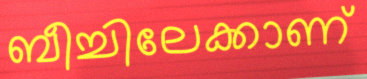
ബീച്ചിലേക്കാണ്